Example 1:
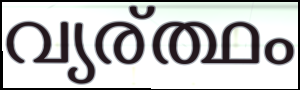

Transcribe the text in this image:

വ്യര്ത്ഥം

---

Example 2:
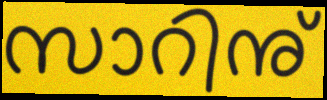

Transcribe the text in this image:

സാറിനു്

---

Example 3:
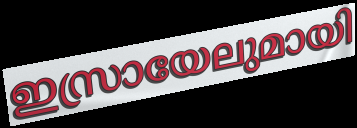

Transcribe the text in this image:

ഇസ്രായേലുമായി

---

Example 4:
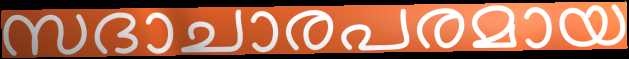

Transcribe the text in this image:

സദാചാരപരമായ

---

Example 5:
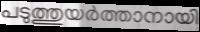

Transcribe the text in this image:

പടുത്തുയർത്താനായി